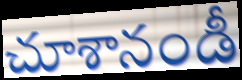
చూశానండీ